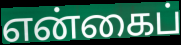
என்கைப்